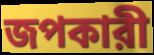
জপকারী